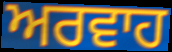
ਅਰਵਾਹ